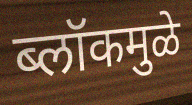
ब्लॉकमुळे